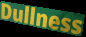
Dullness